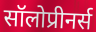
सॉलोप्रीनर्स